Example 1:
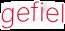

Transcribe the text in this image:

gefiel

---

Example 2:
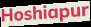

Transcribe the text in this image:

Hoshiapur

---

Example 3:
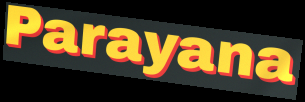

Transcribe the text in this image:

Parayana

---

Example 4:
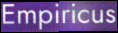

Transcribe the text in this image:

Empiricus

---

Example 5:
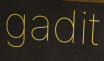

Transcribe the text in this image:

gadit